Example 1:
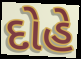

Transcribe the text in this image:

દોહે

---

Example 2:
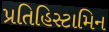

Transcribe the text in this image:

પ્રતિહિસ્ટામિન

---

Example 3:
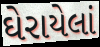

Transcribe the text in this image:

ઘેરાયેલાં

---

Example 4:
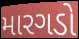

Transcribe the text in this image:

મારગડો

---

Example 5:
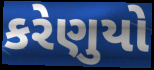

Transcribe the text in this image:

કરેણુયો